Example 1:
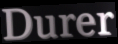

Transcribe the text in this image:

Durer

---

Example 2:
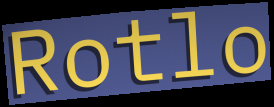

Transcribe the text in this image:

Rotlo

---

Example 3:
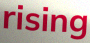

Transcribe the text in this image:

rising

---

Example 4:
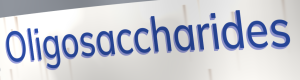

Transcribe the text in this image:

Oligosaccharides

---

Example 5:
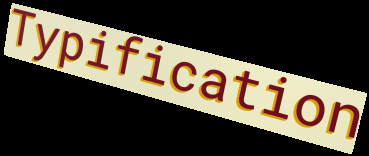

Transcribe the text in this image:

Typification